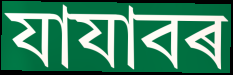
যাযাবৰ